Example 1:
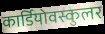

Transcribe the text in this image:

कार्डियोवस्कुलर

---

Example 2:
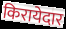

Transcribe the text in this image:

किरायेदार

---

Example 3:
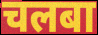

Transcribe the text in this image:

चलबा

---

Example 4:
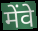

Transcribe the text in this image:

मेंवे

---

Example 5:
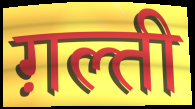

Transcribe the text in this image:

ग़ल्ती